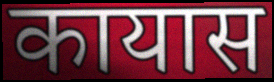
कायास